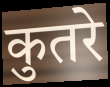
कुतरे